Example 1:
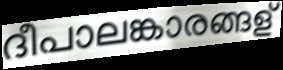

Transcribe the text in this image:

ദീപാലങ്കാരങ്ങള്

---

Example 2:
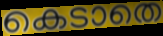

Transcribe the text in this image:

കെടാതെ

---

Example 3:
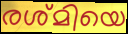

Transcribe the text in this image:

രശ്മിയെ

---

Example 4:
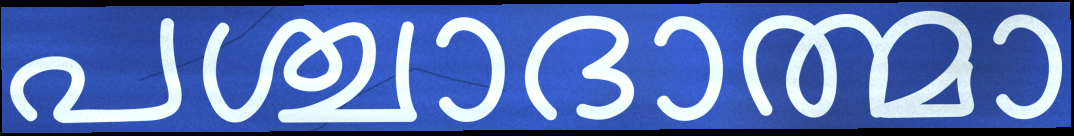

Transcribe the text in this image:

പശ്ചാദാത്മാ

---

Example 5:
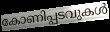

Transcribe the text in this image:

കോണിപ്പടവുകൾ